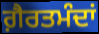
ਗ਼ੈਰਤਮੰਦਾਂ